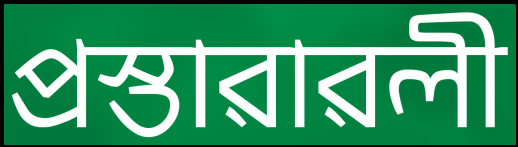
প্ৰস্তাৱাৱলী